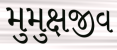
મુમુક્ષજીવ